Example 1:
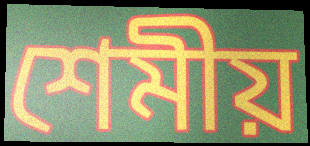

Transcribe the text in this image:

শেমীয়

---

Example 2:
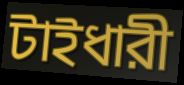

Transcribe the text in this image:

টাইধারী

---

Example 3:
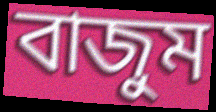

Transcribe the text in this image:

বাজুম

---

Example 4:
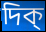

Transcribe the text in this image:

দিক্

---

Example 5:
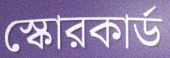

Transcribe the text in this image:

স্কোরকার্ড